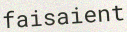
faisaient